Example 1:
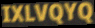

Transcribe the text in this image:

IXLVQYQ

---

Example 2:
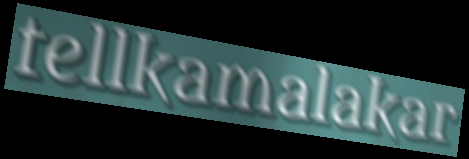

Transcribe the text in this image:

tellkamalakar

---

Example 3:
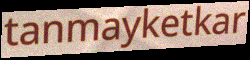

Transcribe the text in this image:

tanmayketkar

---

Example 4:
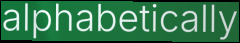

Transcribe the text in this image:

alphabetically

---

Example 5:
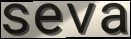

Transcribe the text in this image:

seva